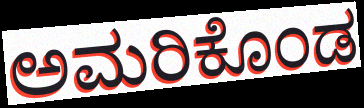
ಅಮರಿಕೊಂಡ